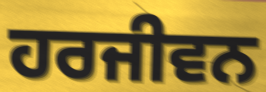
ਹਰਜੀਵਨ